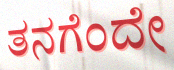
ತನಗೆಂದೇ